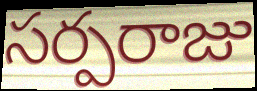
సర్పరాజు